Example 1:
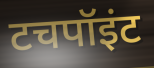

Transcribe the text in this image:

टचपॉइंट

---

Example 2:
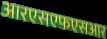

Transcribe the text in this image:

आरएसएफएसआर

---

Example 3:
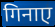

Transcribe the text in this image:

गिनाए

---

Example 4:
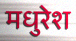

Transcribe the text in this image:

मधुरेश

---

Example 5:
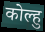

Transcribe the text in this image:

कोल्हु